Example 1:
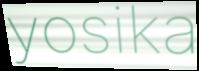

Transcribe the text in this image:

yosika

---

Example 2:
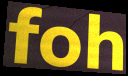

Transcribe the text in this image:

foh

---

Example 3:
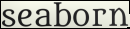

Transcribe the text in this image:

seaborn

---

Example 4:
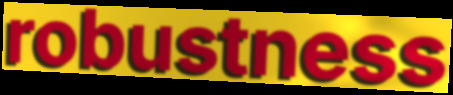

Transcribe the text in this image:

robustness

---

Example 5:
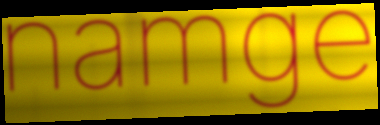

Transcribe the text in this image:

namge